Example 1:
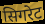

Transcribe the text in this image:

सिगरेट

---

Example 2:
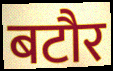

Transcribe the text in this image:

बटौर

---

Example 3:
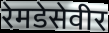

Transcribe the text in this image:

रेमडेसेवीर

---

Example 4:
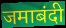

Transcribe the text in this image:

जमाबंदी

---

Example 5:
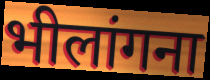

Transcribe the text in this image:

भीलांगना